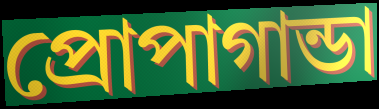
প্রোপাগান্ডা